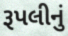
રૂપલીનું